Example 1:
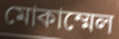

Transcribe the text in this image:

মোকাম্মেল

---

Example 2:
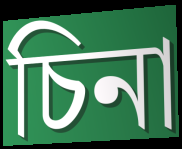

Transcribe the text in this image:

চিনা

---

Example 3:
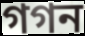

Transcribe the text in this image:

গগন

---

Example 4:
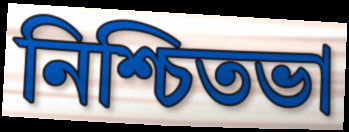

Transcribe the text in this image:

নিশ্চিতভা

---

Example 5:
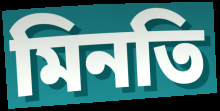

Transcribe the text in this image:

মিনতি